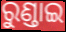
ରୁଣ୍ଡାଇ